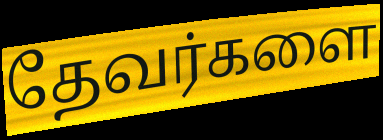
தேவர்களை